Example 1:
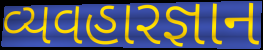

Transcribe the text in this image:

વ્યવહારજ્ઞાન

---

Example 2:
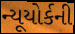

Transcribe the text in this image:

ન્યૂયોર્કની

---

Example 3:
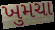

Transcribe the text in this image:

ખુમચા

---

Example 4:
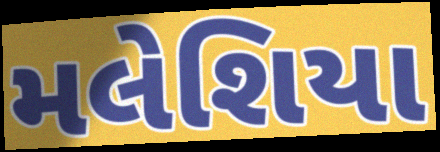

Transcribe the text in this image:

મલેશિયા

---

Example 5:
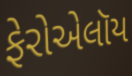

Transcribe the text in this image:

ફેરોએલૉય